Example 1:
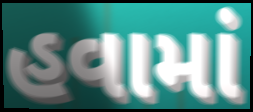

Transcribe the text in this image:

હવામાં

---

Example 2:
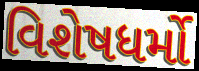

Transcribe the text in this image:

વિશેષધર્મો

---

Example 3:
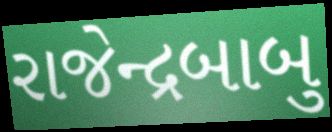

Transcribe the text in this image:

રાજેન્દ્રબાબુ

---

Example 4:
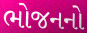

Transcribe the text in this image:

ભોજનનો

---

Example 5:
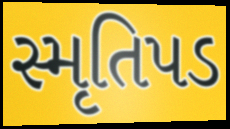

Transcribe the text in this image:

સ્મૃતિપડ